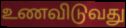
உணவிடுவது